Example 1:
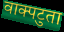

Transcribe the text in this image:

वाक्पटुता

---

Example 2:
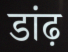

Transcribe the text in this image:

डांढ़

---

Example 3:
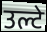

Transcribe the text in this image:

उल्टे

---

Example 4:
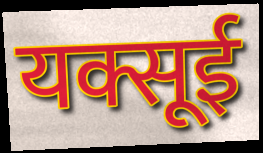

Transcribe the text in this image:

यक्सूई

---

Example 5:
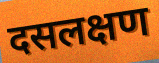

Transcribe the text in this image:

दसलक्षण